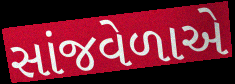
સાંજવેળાએ